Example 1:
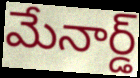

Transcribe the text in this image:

మేనార్డ్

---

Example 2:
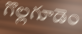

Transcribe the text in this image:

గొల్లగూడెం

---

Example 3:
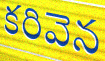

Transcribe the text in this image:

కరివెన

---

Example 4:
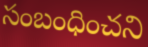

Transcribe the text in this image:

సంబంధించని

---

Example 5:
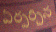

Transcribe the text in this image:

ఏర్పర్చిన